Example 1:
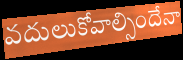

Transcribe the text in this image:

వదులుకోవాల్సిందేనా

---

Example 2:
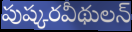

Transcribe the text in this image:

పుష్కరవీథులన్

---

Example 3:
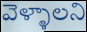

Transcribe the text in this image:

వెళ్ళాలని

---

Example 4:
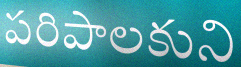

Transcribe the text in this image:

పరిపాలకుని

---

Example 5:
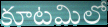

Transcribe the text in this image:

కూటమిలో